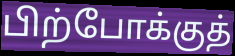
பிற்போக்குத்